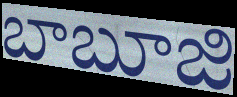
బాబూజి